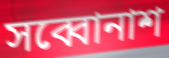
সব্বোনাশ